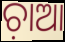
ଚ଼ାଆ